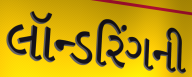
લૉન્ડરિંગની